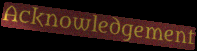
Acknowledgement